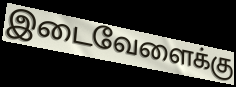
இடைவேளைக்கு